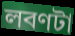
লবণটা